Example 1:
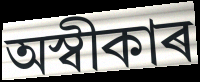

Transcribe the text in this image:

অস্বীকাৰ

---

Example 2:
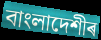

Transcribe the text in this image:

বাংলাদেশীৰ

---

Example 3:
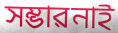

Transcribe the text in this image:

সম্ভাৱনাই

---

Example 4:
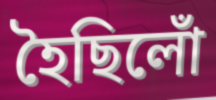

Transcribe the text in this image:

হৈছিলোঁ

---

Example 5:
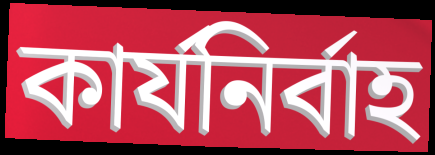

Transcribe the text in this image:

কাৰ্যনিৰ্বাহ